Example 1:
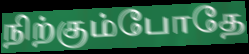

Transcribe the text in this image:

நிற்கும்போதே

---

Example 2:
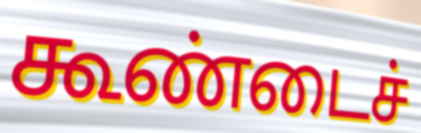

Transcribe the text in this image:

கூண்டைச்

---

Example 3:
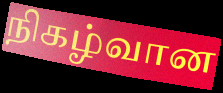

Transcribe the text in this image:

நிகழ்வான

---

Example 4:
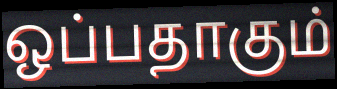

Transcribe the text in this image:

ஒப்பதாகும்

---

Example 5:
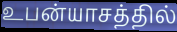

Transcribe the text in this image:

உபன்யாசத்தில்